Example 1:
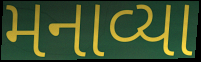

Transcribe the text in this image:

મનાવ્યા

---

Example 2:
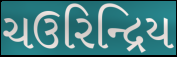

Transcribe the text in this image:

ચઉરિન્દ્રિય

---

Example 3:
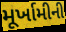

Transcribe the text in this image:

મૂર્ખામીની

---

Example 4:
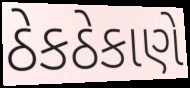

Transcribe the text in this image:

ઠેકઠેકાણે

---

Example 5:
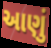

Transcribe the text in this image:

આણું